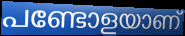
പണ്ടോളയാണ്